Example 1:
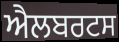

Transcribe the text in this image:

ਐਲਬਰਟਸ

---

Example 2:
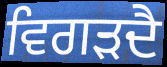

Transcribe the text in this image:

ਵਿਗੜਦੈ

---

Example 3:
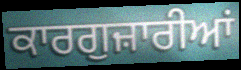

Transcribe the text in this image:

ਕਾਰਗੁਜ਼ਾਰੀਆਂ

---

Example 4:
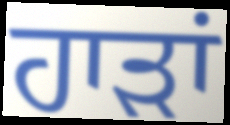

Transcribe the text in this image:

ਹਾੜਾਂ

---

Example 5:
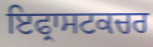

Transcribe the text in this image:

ਇਫ੍ਰਾਸਟਕਚਰ